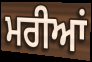
ਮਰੀਆਂ